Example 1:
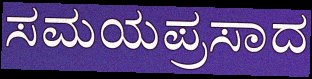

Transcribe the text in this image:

ಸಮಯಪ್ರಸಾದ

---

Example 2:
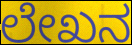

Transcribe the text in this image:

ಲೇಖನ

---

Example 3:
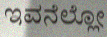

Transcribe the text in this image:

ಇವನೆಲ್ಲೋ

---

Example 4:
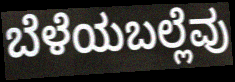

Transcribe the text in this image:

ಬೆಳೆಯಬಲ್ಲೆವು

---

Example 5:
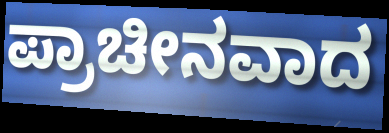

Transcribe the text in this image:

ಪ್ರಾಚೀನವಾದ